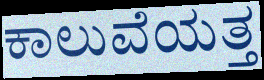
ಕಾಲುವೆಯತ್ತ